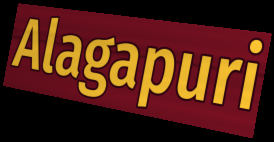
Alagapuri